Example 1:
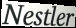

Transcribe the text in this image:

Nestler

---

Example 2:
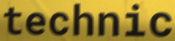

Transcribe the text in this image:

technic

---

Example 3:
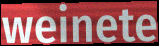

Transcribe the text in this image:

weinete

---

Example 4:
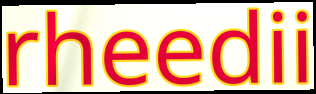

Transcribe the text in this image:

rheedii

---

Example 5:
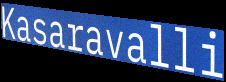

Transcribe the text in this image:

Kasaravalli